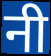
नी